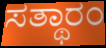
ಸತ್ಥಾರಂ